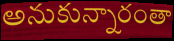
అనుకున్నారంతా